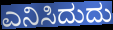
ಎನಿಸಿದುದು